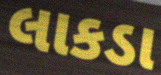
લાકડા